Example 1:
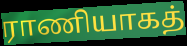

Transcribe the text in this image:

ராணியாகத்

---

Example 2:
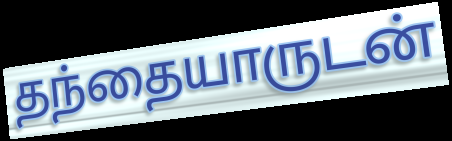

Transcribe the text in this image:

தந்தையாருடன்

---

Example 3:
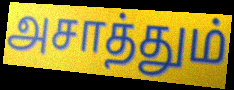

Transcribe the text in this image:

அசாத்தும்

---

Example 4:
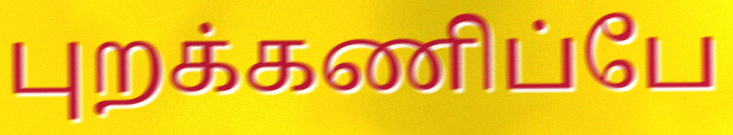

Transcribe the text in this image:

புறக்கணிப்பே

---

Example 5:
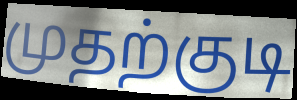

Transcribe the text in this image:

முதற்குடி